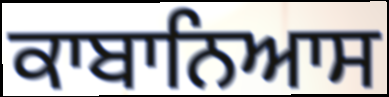
ਕਾਬਾਨਿਆਸ